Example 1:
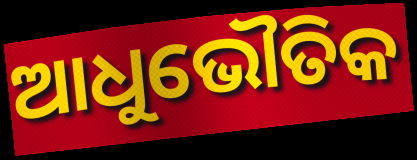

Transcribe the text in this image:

ଆଧୁଭୌତିକ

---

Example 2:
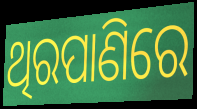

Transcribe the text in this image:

ଥିରପାଣିରେ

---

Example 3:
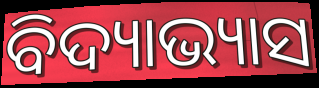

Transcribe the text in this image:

ବିଦ୍ୟାଭ୍ୟାସ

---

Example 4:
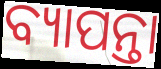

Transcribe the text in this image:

ବ୍ୟାପନ୍ତା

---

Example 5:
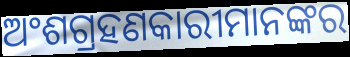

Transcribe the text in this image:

ଅଂଶଗ୍ରହଣକାରୀମାନଙ୍କର